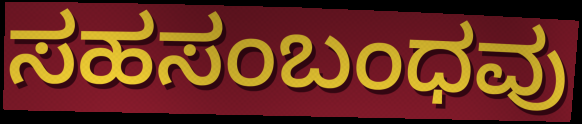
ಸಹಸಂಬಂಧವು